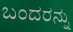
ಬಂದರನ್ನು